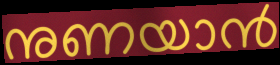
നുണയാൻ